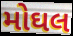
મોઘલ